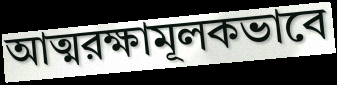
আত্মরক্ষামূলকভাবে